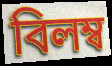
বিলম্ব